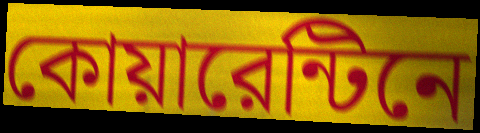
কোয়ারেন্টিনে